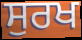
ਸੁਰਖ